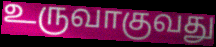
உருவாகுவது